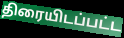
திரையிடப்பட்ட